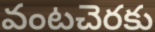
వంటచెరకు